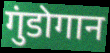
गुंडोगान